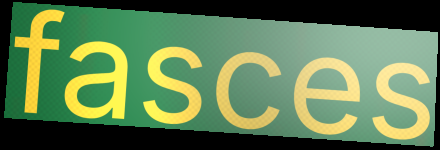
fasces